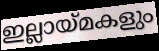
ഇല്ലായ്മകളും